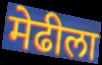
मेढीला